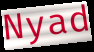
Nyad